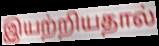
இயற்றியதால்